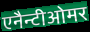
एनैन्टीओमर